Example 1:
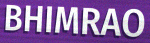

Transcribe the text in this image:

BHIMRAO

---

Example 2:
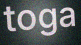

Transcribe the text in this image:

toga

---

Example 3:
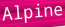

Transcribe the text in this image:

Alpine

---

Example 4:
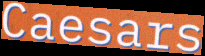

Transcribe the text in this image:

Caesars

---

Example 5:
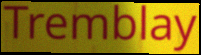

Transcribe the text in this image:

Tremblay